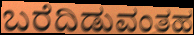
ಬರೆದಿಡುವಂತಹ